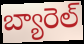
బ్యారెల్